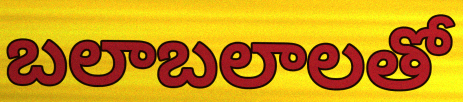
బలాబలాలతో